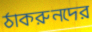
ঠাকরুনদের